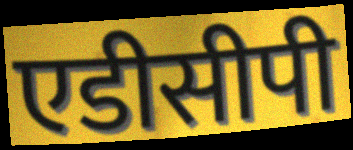
एडीसीपी